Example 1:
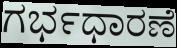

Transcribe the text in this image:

ಗರ್ಭಧಾರಣೆ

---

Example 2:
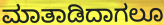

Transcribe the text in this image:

ಮಾತಾಡಿದಾಗಲೂ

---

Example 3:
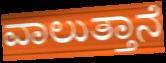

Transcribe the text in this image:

ವಾಲುತ್ತಾನೆ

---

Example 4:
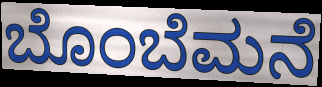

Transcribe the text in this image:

ಬೊಂಬೆಮನೆ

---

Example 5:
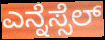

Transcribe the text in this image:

ಎನ್ನೆಸ್ಸೆಲ್